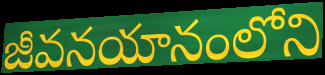
జీవనయానంలోని